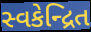
સ્વકેન્દ્રિત